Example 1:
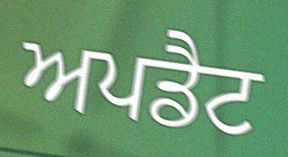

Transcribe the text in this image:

ਅਪਡੈਟ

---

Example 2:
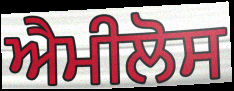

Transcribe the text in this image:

ਐਮੀਲੋਸ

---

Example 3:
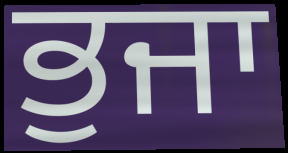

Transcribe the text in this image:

ਭੁਜਾ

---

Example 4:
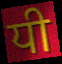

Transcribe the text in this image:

ਧੀ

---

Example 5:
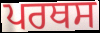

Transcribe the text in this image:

ਪਰਥਸ